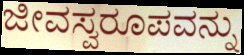
ಜೀವಸ್ವರೂಪವನ್ನು